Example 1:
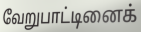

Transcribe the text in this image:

வேறுபாட்டினைக்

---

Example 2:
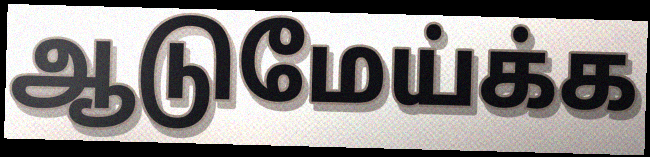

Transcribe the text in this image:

ஆடுமேய்க்க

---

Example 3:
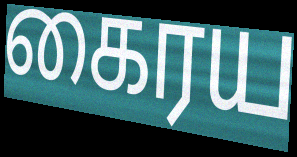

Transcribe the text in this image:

கைரய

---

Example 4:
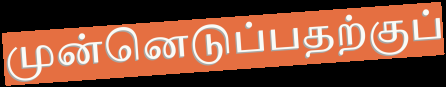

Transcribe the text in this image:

முன்னெடுப்பதற்குப்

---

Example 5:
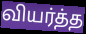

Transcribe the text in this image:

வியர்த்த